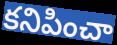
కనిపించా